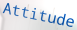
Attitude